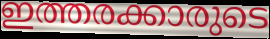
ഇത്തരക്കാരുടെ